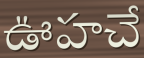
ఊహచే